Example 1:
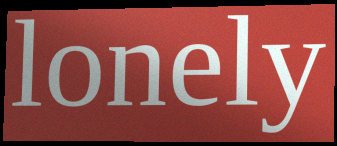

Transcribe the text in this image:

lonely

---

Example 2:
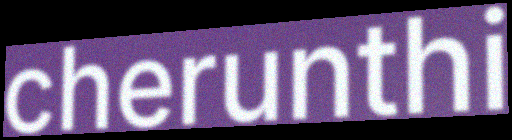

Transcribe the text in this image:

cherunthi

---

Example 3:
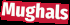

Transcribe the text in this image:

Mughals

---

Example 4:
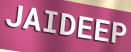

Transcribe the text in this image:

JAIDEEP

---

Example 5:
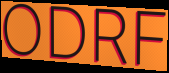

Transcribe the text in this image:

ODRF